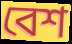
বেশ